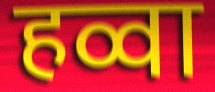
हव्वा